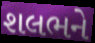
શલભને